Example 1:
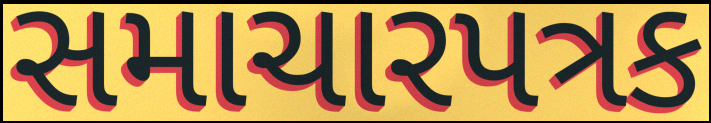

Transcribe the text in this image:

સમાચારપત્રક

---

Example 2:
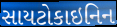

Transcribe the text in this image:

સાયટોકાઇનિન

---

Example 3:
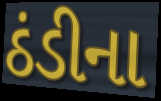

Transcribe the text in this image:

ઠંડીના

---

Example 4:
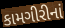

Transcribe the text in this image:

કામગીરીનાં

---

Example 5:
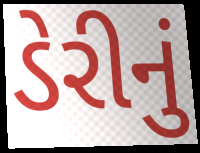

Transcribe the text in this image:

ડેરીનું